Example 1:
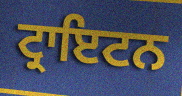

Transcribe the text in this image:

ਟ੍ਰਾਇਟਨ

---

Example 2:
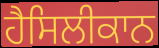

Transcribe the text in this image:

ਹੈਸਿਲੀਕਾਨ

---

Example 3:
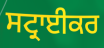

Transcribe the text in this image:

ਸਟ੍ਰਾਈਕਰ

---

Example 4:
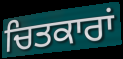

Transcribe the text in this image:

ਚਿਤਕਾਰਾਂ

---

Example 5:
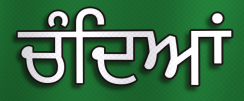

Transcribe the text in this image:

ਚੰਦਿਆਂ